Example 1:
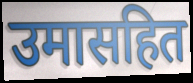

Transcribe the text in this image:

उमासहित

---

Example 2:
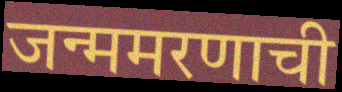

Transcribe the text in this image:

जन्ममरणाची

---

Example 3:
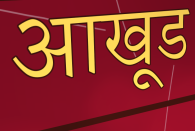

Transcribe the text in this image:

आखूड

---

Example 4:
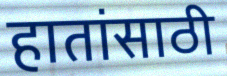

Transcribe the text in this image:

हातांसाठी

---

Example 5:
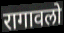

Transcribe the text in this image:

रागावलो